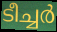
ടീച്ചർ